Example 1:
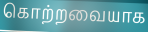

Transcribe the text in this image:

கொற்றவையாக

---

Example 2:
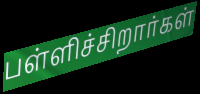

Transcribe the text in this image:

பள்ளிச்சிறார்கள்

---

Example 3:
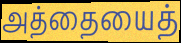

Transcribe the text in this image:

அத்தையைத்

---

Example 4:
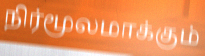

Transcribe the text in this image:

நிர்மூலமாக்கும்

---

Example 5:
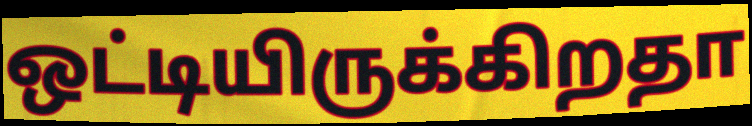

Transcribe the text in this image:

ஒட்டியிருக்கிறதா